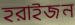
হরাইজন